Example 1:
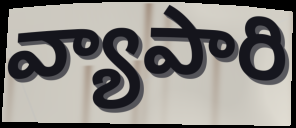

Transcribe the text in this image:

వ్యాపారి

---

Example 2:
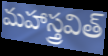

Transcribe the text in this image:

మహాస్త్రవిత్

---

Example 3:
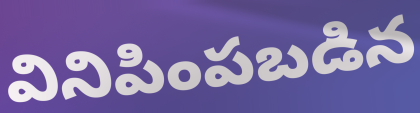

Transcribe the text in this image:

వినిపింపబడిన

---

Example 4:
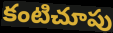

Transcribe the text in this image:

కంటిచూపు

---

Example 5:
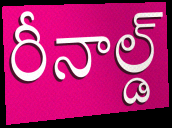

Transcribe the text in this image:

రీనాల్డ్